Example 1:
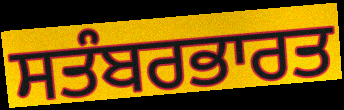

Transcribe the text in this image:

ਸਤੰਬਰਭਾਰਤ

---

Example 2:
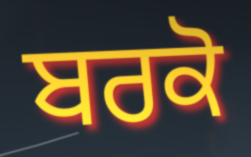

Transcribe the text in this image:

ਬਰਕੋ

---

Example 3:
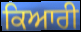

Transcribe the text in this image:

ਕਿਆਰੀ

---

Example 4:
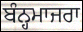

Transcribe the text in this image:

ਬੰਨ੍ਹਮਾਜਰਾ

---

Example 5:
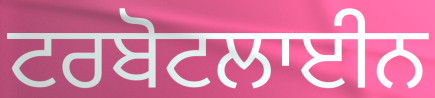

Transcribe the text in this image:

ਟਰਬੋਟਲਾਈਨ